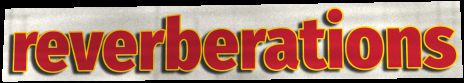
reverberations